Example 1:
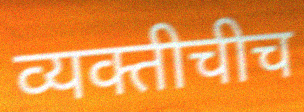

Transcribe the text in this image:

व्यक्तीचीच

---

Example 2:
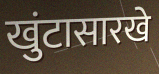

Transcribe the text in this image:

खुंटासारखे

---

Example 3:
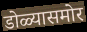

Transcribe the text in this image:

डोळ्यासमोर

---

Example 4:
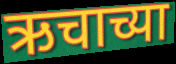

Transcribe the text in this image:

ऋचाच्या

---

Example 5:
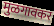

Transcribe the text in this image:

मुळगावकर